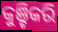
କୁଞ୍ଚିକରି